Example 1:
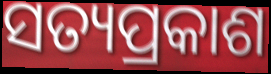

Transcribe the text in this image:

ସତ୍ୟପ୍ରକାଶ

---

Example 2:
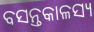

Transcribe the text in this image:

ବସନ୍ତକାଳସ୍ୟ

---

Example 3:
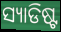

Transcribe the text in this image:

ସ୍ୟାଡିଷ୍ଟ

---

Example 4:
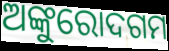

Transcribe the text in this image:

ଅଙ୍କୁରୋଦଗମ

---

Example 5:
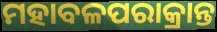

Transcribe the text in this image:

ମହାବଳପରାକ୍ରାନ୍ତ